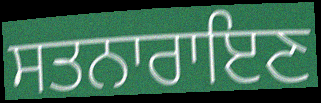
ਸਤਨਾਰਾਇਣ